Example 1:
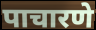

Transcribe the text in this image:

पाचारणे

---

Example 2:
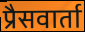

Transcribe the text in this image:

प्रैसवार्ता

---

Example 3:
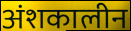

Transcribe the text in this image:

अंशकालीन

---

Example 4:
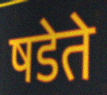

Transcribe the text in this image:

षडेते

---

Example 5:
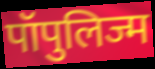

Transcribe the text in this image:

पॉपुलिज्म